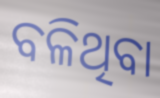
ବଳିଥିବା